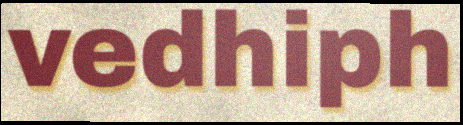
vedhiph